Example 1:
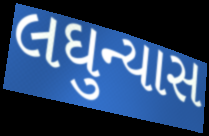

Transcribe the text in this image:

લઘુન્યાસ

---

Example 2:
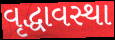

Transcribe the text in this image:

વૃદ્ધાવસ્થા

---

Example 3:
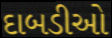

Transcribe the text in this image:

દાબડીઓ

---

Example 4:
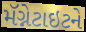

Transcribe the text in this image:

મૅગ્નેટાઇટને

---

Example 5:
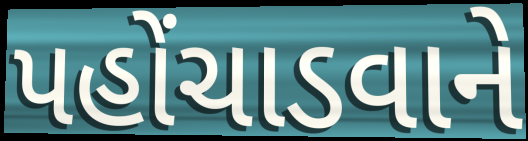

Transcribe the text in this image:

પહોંચાડવાને